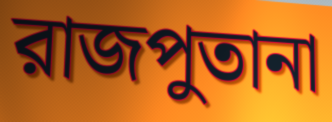
রাজপুতানা